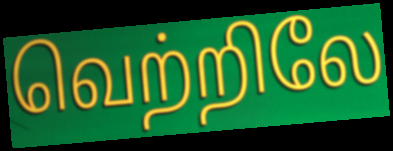
வெற்றிலே